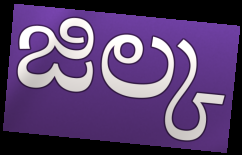
జిల్క